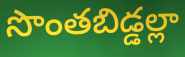
సొంతబిడ్డల్లా